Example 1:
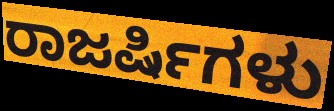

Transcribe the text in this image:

ರಾಜರ್ಷಿಗಳು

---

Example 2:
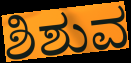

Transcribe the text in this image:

ಶಿಶುವ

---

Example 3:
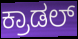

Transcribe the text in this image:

ಕ್ರಾಡಲ್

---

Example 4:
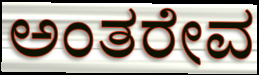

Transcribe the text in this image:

ಅಂತರೇವ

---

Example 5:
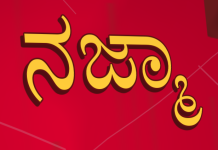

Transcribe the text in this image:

ನಜ್ಮಾ